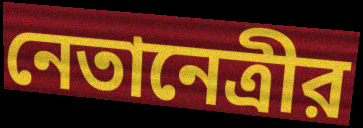
নেতানেত্রীর